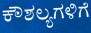
ಕೌಶಲ್ಯಗಳಿಗೆ